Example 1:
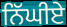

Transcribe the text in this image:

ਨਿੱਘੀਏ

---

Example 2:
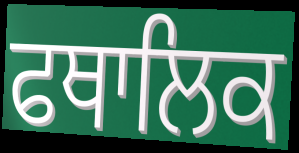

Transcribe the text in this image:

ਫਥਾਲਿਕ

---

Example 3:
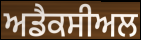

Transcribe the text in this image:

ਅਡੈਕਸੀਅਲ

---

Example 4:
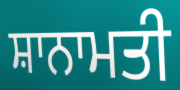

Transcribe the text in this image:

ਸ਼ਾਨਾਮਤੀ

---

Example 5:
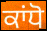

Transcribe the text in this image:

ਕਾਂਧੋ